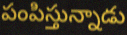
పంపిస్తున్నాడు